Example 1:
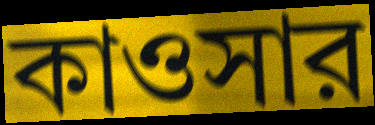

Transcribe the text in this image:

কাওসার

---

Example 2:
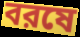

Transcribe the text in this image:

বরষে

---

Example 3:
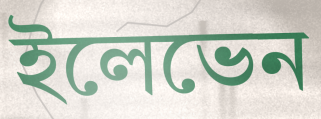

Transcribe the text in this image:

ইলেভেন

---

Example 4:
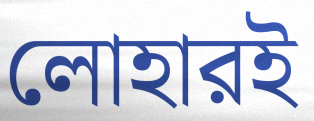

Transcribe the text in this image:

লোহারই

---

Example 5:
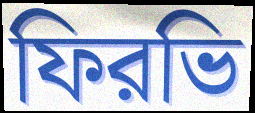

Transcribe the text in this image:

ফিরভি